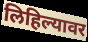
लिहिल्यावर